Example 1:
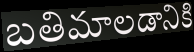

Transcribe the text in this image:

బతిమాలడానికి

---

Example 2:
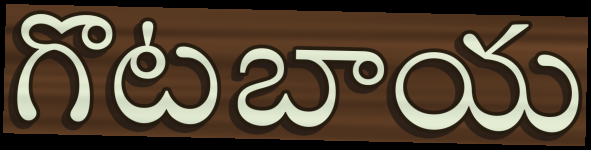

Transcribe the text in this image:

గొటబాయ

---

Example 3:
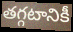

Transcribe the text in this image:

తగ్గటానికీ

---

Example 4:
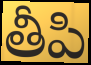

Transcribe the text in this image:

తీపి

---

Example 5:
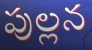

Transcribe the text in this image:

పుల్లన